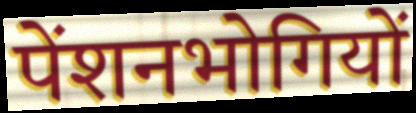
पेंशनभोगियों